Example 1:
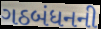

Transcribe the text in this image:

ગઠબંધનની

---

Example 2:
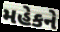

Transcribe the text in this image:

મહેકને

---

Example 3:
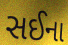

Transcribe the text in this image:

સઈના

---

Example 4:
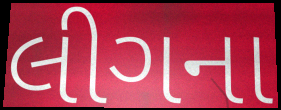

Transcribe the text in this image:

લીગના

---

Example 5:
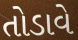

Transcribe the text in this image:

તોડાવે